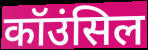
कॉउंसिल